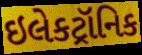
ઇલેકટ્રૉનિક